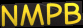
NMPB